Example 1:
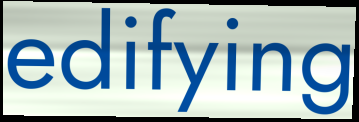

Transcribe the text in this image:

edifying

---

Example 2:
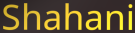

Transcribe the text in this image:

Shahani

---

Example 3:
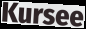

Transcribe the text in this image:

Kursee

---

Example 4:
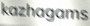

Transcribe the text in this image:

kazhagams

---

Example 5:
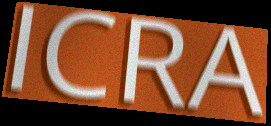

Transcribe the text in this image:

ICRA